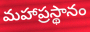
మహాప్రస్థానం